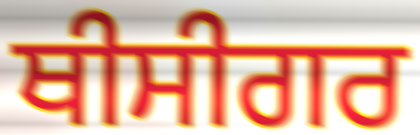
ਥੀਸੀਗਰ